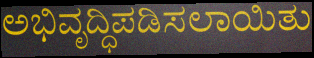
ಅಭಿವೃದ್ಧಿಪಡಿಸಲಾಯಿತು